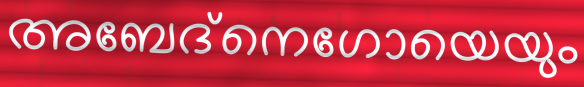
അബേദ്നെഗോയെയും